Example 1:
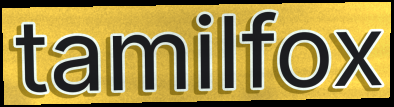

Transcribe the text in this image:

tamilfox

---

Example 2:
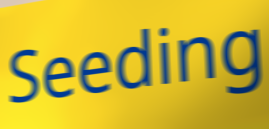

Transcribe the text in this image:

Seeding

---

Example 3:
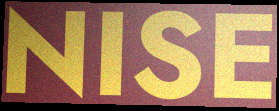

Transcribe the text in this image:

NISE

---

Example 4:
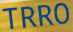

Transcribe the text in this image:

TRRO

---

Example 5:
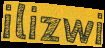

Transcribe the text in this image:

ilizwi